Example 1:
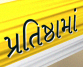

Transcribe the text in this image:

પ્રતિષ્ઠામાં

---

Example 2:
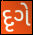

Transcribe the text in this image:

દૃગે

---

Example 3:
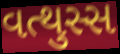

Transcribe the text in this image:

વત્થુસ્સ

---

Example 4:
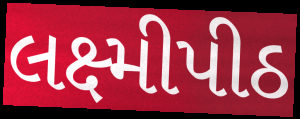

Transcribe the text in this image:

લક્ષ્મીપીઠ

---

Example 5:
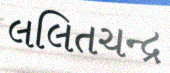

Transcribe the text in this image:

લલિતચન્દ્ર